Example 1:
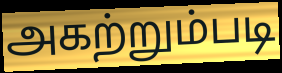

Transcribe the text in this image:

அகற்றும்படி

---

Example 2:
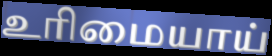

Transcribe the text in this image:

உரிமையாய்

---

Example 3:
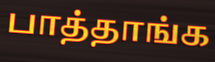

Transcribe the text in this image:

பாத்தாங்க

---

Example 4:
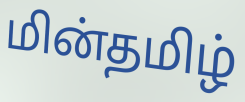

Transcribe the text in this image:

மின்தமிழ்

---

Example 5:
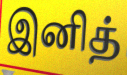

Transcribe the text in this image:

இனித்